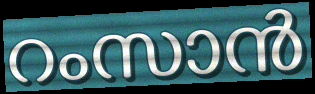
റംസാൻ